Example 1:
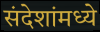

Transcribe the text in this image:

संदेशांमध्ये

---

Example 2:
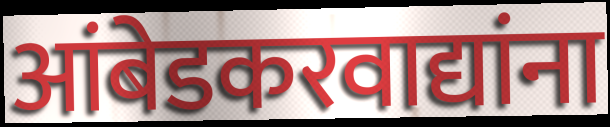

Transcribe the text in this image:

आंबेडकरवाद्यांना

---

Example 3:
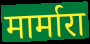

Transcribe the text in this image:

मार्मारा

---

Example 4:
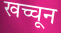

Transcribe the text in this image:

खच्चून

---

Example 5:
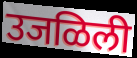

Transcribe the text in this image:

उजळिली